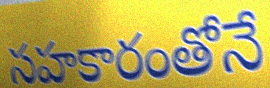
సహకారంతోనే